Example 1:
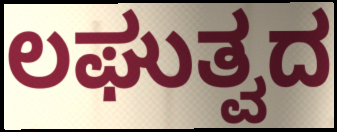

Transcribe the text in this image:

ಲಘುತ್ವದ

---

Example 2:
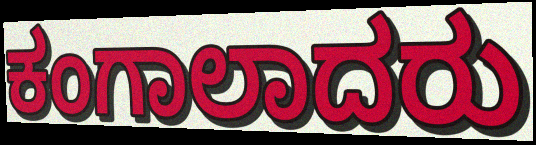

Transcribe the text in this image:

ಕಂಗಾಲಾದರು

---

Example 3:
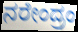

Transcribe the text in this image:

ನರೇಂದ್ರಂ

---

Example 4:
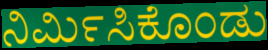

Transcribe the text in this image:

ನಿರ್ಮಿಸಿಕೊಂಡು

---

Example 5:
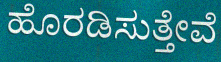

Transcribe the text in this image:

ಹೊರಡಿಸುತ್ತೇವೆ